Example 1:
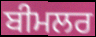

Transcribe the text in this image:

ਬੀਮਲਰ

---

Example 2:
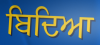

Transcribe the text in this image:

ਬਿਦਿਆ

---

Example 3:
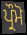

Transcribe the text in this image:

ਪ੍ਰੌਮੋ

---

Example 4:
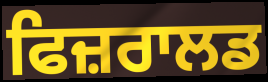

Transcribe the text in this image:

ਫਿਜ਼ਰਾਲਡ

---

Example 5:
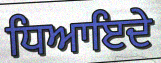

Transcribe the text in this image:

ਧਿਆਇਦੇ